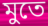
মুতে